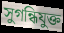
সুগন্ধিযুক্ত